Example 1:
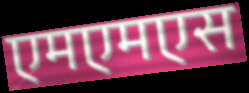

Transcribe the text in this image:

एमएमएस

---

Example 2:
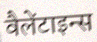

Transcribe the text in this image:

वैलेंटाइन्स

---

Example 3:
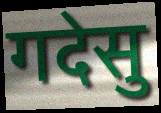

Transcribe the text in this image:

गदेसु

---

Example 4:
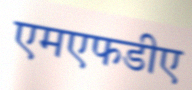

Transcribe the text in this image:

एमएफडीए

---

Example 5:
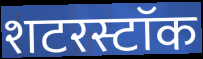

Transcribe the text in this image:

शटरस्‍टॉक